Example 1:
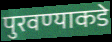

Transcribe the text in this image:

पुरवण्याकडे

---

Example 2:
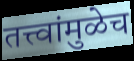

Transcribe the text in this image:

तत्त्वांमुळेच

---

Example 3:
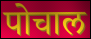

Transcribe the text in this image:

पोचाल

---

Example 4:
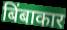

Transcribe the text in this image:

बिंबाकार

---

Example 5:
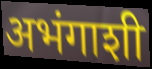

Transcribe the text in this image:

अभंगाशी